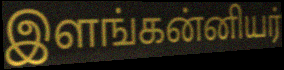
இளங்கன்னியர்